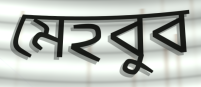
মেহবুব